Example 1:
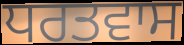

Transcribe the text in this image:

ਧਰਤਵਾਸ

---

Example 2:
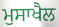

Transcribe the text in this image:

ਮੁਸਾਖੈਲ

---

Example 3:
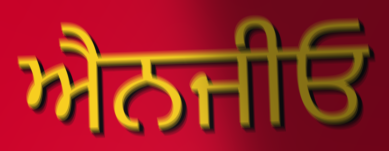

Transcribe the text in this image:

ਐਨਜੀਓ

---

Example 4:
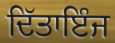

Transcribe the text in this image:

ਦਿੱਤਾਇੰਜ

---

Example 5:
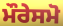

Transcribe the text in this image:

ਮੌਰੇਸਮੋ